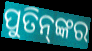
ପୁତିନ୍‌ଙ୍କର